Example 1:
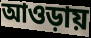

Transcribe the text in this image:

আওড়ায়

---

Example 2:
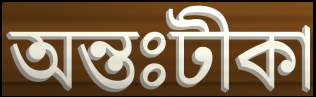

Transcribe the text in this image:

অন্তঃটীকা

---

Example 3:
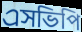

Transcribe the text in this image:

এসভিপি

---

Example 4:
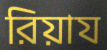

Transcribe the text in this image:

রিয়ায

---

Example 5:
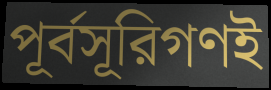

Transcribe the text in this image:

পূর্বসূরিগণই